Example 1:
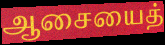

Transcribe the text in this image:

ஆசையைத்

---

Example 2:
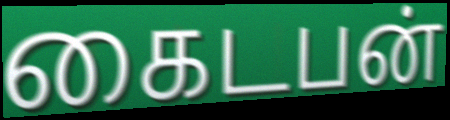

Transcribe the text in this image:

கைடபன்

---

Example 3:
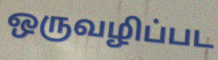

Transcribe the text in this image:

ஒருவழிப்பட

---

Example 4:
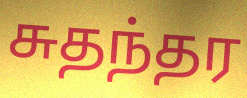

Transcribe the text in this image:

சுதந்தர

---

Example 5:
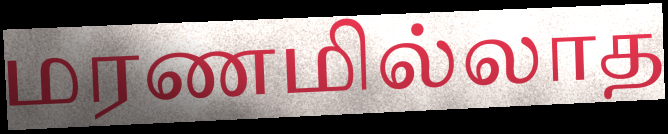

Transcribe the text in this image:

மரணமில்லாத